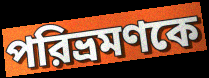
পরিভ্রমণকে